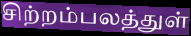
சிற்றம்பலத்துள்